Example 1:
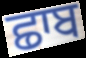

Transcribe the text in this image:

ਛਾਬ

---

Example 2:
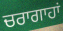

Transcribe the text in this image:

ਚਰਾਗਾਹਾਂ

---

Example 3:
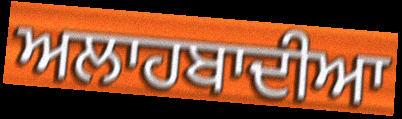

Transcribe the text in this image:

ਅਲਾਹਬਾਦੀਆ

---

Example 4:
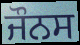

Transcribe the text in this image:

ਜੌਨਸ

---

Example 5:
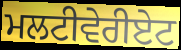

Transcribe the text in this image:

ਮਲਟੀਵੇਰੀਏਟ